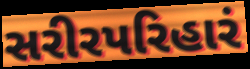
સરીરપરિહારં